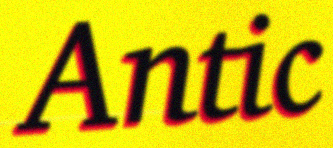
Antic